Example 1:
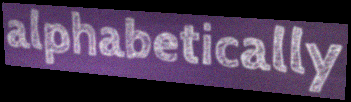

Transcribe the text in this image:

alphabetically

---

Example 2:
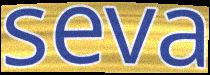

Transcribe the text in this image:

seva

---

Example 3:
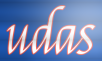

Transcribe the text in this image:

udas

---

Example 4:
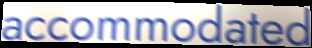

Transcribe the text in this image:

accommodated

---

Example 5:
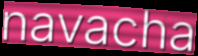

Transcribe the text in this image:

navacha